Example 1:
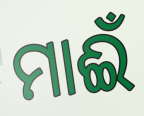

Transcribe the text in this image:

ମାଈଁ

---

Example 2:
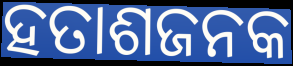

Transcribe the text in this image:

ହତାଶଜନକ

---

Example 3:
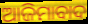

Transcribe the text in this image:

ଆଜିମାବାଦ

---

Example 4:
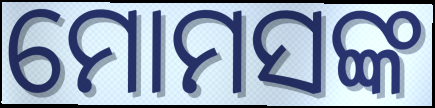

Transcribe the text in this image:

ମୋମସଙ୍କ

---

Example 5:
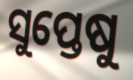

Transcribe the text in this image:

ସୁପ୍ତେଷୁ